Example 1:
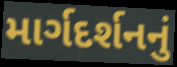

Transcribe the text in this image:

માર્ગદર્શનનું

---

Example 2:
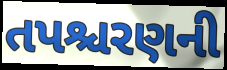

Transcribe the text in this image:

તપશ્ચરણની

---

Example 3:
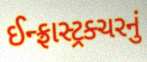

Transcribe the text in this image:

ઈન્ફ્રાસ્ટ્રક્ચરનું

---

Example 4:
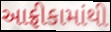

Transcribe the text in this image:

આફ્રીકામાંથી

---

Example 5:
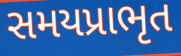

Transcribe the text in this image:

સમયપ્રાભૃત